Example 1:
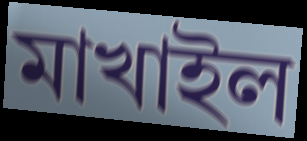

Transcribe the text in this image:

মাখাইল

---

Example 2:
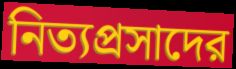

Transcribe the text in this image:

নিত্যপ্রসাদের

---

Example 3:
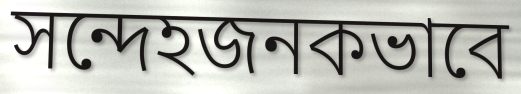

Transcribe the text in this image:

সন্দেহজনকভাবে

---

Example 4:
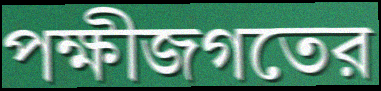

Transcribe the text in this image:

পক্ষীজগতের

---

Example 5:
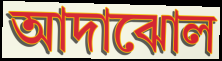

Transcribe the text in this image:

আদাঝোল